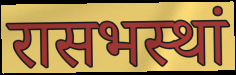
रासभस्थां